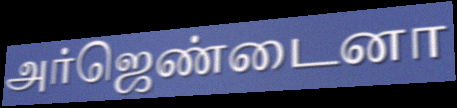
அர்ஜெண்டைனா